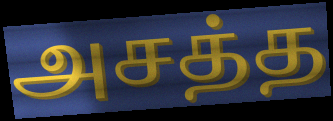
அசத்த